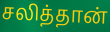
சலித்தான்